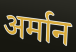
अर्मान